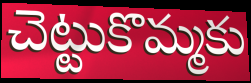
చెట్టుకొమ్మకు